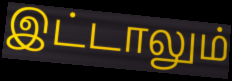
இட்டாலும்